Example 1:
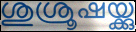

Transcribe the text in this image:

ശുശ്രൂഷയ്ക്കു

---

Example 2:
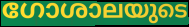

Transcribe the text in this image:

ഗോശാലയുടെ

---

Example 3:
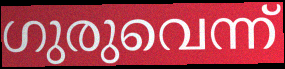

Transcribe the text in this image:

ഗുരുവെന്ന്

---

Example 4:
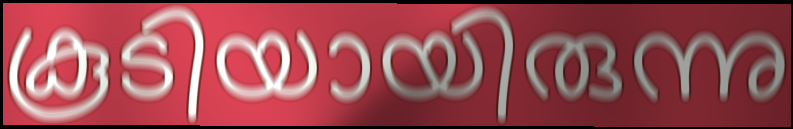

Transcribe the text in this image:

കൂടിയായിരുന്നു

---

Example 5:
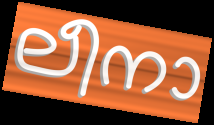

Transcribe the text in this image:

ലീനാ